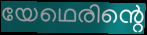
യേഥെരിന്റെ